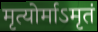
मृत्योर्माऽमृतं